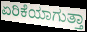
ಏರಿಕೆಯಾಗುತ್ತಾ